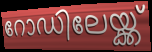
റോഡിലേയ്ക്ക്